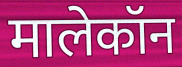
मालेकॉन